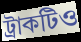
ট্রাকটিও